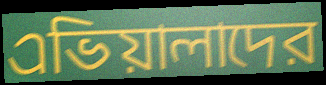
এভিয়ালাদের